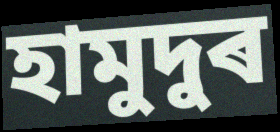
হামুদুৰ